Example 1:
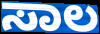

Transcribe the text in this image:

ಸಾಲ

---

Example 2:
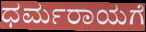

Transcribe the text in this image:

ಧರ್ಮರಾಯಗೆ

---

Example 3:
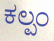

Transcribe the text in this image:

ಕಲ್ಪಂ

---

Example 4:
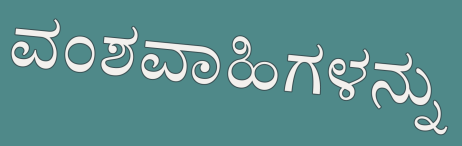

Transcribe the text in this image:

ವಂಶವಾಹಿಗಳನ್ನು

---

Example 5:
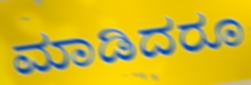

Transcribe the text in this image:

ಮಾಡಿದರೂ